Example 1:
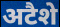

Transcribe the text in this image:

अटैशे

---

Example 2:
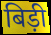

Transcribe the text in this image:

बिड़ी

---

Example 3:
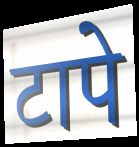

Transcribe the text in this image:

टापे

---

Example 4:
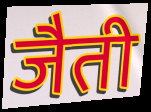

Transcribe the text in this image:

जैती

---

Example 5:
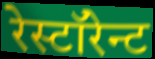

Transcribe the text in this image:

रेस्टॉरेन्ट